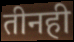
तीनही